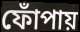
ফোঁপায়